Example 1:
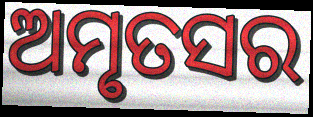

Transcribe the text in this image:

ଅମୃତସର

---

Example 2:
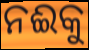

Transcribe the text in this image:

ନଈକୁ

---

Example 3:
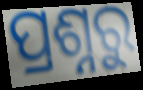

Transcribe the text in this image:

ପ୍ରଶ୍ନରୁ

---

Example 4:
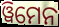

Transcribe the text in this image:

ୱିମେନ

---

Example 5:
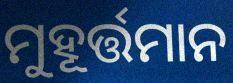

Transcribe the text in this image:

ମୁହୂର୍ତ୍ତମାନ